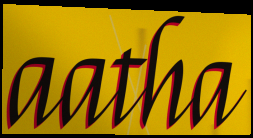
aatha